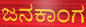
ಜನಕಾಂಗ